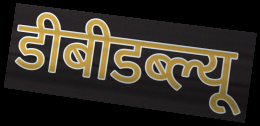
डीबीडब्ल्यू